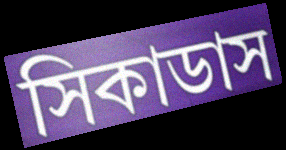
সিকাডাস